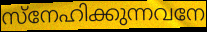
സ്നേഹിക്കുന്നവനേ